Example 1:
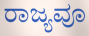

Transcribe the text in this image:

ರಾಜ್ಯವೂ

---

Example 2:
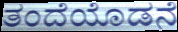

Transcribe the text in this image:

ತಂದೆಯೊಡನೆ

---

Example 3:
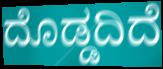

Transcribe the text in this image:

ದೊಡ್ಡದಿದೆ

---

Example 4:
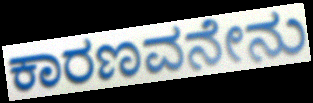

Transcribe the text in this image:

ಕಾರಣವನೇನು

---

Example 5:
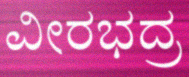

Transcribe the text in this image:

ವೀರಭದ್ರ